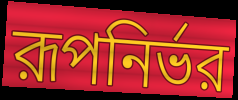
রূপনির্ভর